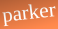
parker